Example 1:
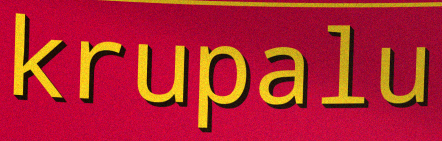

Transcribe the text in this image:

krupalu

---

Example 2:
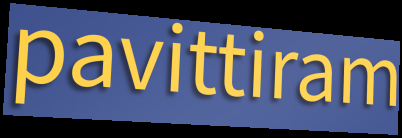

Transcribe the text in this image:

pavittiram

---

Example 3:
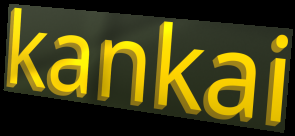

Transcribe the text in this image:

kankai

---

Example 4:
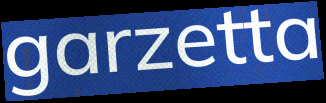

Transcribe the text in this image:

garzetta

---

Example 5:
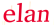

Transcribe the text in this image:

elan